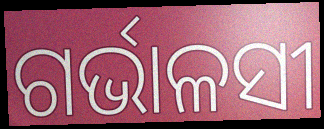
ଗର୍ଭାଳସୀ